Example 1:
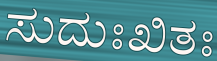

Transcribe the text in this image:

ಸುದುಃಖಿತಃ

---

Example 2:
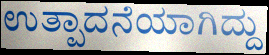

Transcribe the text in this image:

ಉತ್ಪಾದನೆಯಾಗಿದ್ದು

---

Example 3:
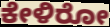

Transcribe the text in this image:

ಕೇಳಿರೋ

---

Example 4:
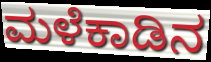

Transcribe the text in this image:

ಮಳೆಕಾಡಿನ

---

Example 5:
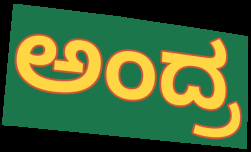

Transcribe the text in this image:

ಅಂದ್ರ